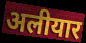
अलीयार